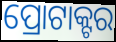
ପ୍ରୋଟାକ୍ଟର